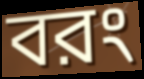
বরং